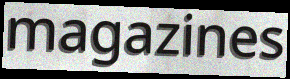
magazines